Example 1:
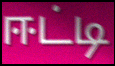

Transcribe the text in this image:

ஈட்டி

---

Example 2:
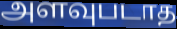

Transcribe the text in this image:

அளவுபடாத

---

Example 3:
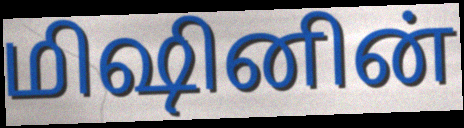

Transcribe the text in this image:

மிஷினின்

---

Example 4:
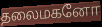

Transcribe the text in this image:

தலைமகனோ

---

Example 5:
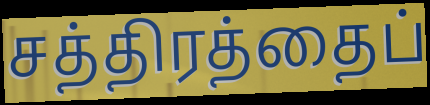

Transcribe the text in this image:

சத்திரத்தைப்